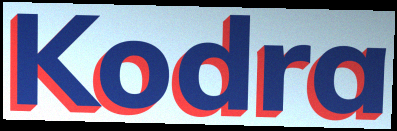
Kodra